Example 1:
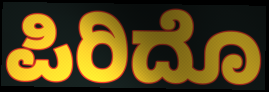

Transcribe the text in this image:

ಪಿರಿದೊ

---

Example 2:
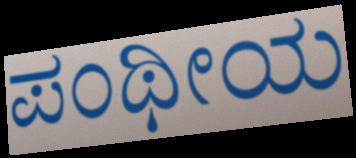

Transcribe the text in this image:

ಪಂಥೀಯ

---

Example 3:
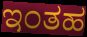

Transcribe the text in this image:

ಇಂತಹ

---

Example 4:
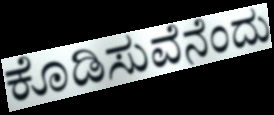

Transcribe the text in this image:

ಕೊಡಿಸುವೆನೆಂದು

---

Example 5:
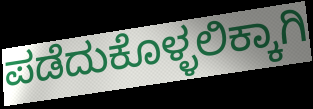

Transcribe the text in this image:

ಪಡೆದುಕೊಳ್ಳಲಿಕ್ಕಾಗಿ